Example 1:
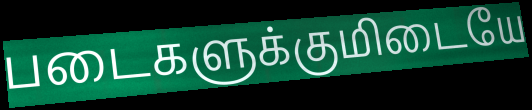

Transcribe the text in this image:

படைகளுக்குமிடையே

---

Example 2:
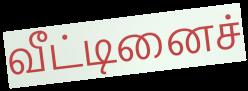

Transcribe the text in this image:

வீட்டினைச்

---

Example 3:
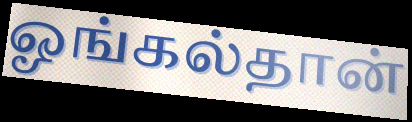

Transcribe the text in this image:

ஓங்கல்தான்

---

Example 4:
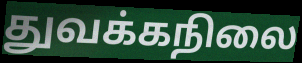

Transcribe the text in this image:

துவக்கநிலை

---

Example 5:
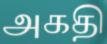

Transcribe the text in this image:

அகதி